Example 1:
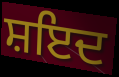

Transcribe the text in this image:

ਸ਼ਇਦ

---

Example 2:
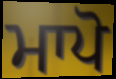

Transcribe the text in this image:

ਮਾਪੋ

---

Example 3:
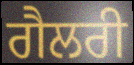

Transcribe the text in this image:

ਗੈਲਰੀ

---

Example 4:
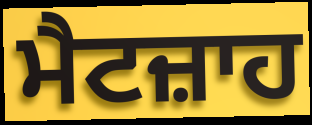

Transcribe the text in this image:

ਮੈਟਜ਼ਾਹ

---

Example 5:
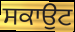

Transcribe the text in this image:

ਸਕਾਉਟ